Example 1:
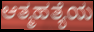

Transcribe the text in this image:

ಆತ್ಮಹತ್ಯೆಯ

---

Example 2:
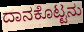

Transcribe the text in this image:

ದಾನಕೊಟ್ಟನು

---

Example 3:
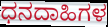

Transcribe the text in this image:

ಧನದಾಹಿಗಳ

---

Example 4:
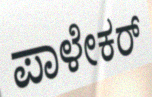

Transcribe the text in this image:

ಪಾಳೇಕರ್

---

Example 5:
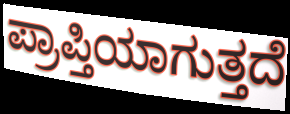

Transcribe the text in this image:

ಪ್ರಾಪ್ತಿಯಾಗುತ್ತದೆ